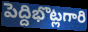
పెద్దిభొట్లగారి